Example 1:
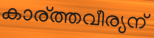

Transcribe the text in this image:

കാര്ത്തവീര്യന്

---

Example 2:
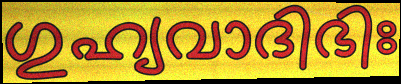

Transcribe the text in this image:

ഗുഹ്യവാദിഭിഃ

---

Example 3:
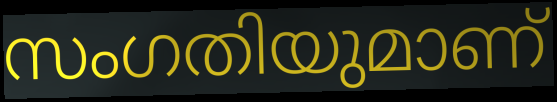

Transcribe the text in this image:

സംഗതിയുമാണ്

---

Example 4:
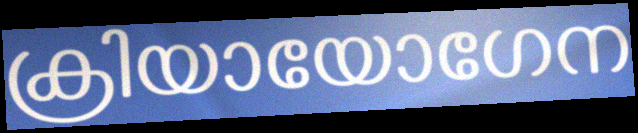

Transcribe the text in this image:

ക്രിയായോഗേന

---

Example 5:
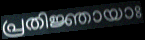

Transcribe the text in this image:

പ്രതിജ്ഞായാഃ